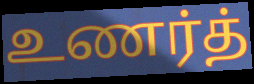
உணர்த்